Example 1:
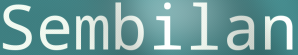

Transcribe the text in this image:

Sembilan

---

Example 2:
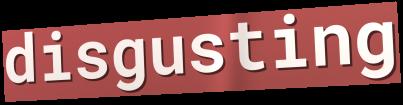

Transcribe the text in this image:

disgusting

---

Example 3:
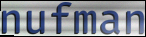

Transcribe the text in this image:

nufman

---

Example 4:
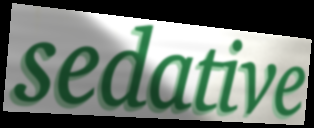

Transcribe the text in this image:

sedative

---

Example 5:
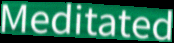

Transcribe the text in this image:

Meditated